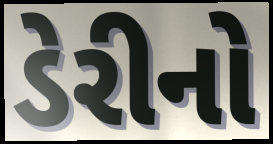
ડેરીનો